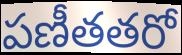
పణీతతరో